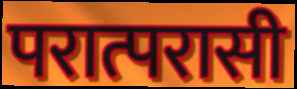
परात्परासी